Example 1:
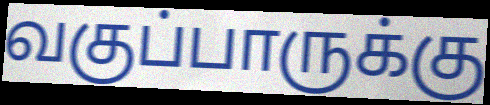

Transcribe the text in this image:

வகுப்பாருக்கு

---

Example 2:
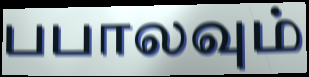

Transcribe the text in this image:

பபாலவும்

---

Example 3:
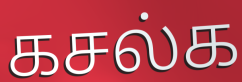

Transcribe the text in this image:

கசல்க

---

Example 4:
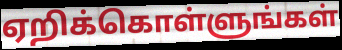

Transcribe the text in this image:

ஏறிக்கொள்ளுங்கள்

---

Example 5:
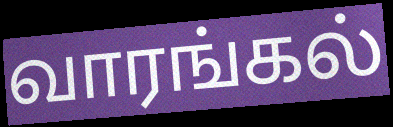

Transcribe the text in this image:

வாரங்கல்